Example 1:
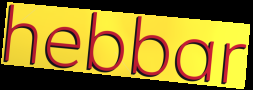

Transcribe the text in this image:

hebbar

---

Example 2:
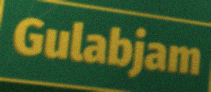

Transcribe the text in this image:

Gulabjam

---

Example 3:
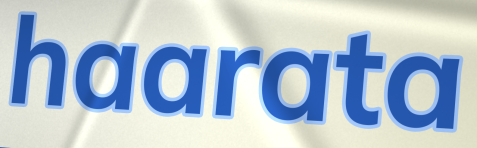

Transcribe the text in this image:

haarata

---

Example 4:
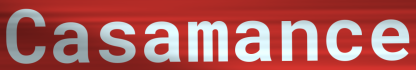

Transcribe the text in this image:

Casamance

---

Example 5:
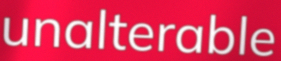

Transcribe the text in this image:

unalterable